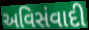
અવિસંવાદી